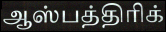
ஆஸ்பத்திரிக்